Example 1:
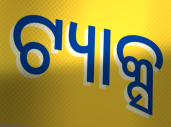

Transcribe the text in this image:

ଟ୍ୟାକ୍ସ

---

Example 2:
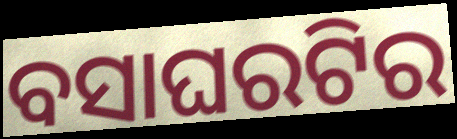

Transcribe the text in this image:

ବସାଘରଟିର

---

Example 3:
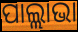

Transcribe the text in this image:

ପାଲ୍ଲାଭା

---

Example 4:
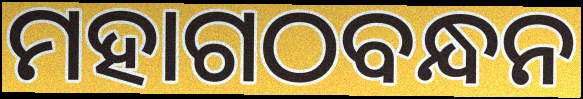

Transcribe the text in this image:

ମହାଗଠବନ୍ଧନ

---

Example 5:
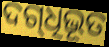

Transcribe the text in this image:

ଦଗ୍‍ଧିଭୂତ